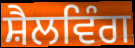
ਸ਼ੈਲਵਿੰਗ